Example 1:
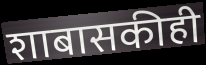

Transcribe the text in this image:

शाबासकीही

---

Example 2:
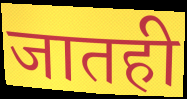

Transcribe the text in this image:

जातही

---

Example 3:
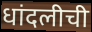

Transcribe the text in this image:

धांदलीची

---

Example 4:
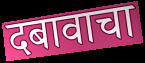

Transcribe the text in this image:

दबावाचा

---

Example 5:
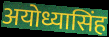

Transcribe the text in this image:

अयोध्यासिंह